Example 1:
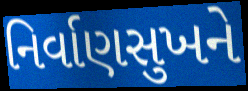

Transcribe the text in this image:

નિર્વાણસુખને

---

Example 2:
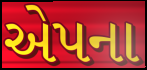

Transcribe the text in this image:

એપના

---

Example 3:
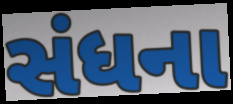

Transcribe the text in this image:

સંધના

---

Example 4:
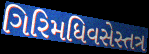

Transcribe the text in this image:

ગિરિમધિવસેસ્તત્ર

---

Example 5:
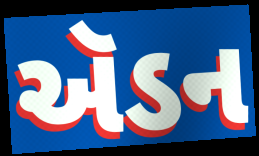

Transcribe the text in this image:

ઍડન